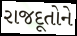
રાજદૂતોને